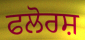
ਫਲੋਰਸ਼